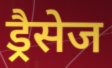
ड्रैसेज